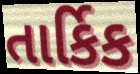
તાર્કિક